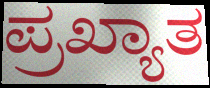
ಪ್ರಖ್ಯಾತ